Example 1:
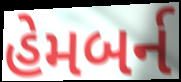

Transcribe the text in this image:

હેમબર્ન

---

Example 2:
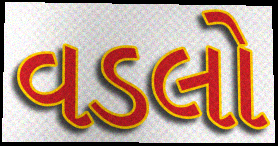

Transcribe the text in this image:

વડલો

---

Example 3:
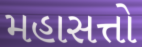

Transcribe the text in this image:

મહાસત્તો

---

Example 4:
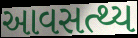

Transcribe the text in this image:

આવસત્થ્ય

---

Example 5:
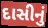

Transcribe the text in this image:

દાસીનું